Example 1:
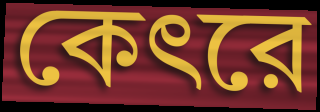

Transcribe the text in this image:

কেৎরে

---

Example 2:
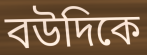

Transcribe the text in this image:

বউদিকে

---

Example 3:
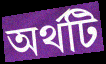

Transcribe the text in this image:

অর্থটি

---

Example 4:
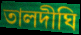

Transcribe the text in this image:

তালদীঘি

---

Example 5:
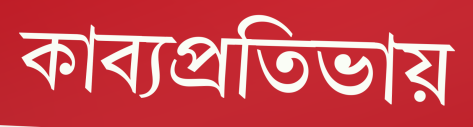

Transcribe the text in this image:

কাব্যপ্রতিভায়